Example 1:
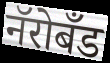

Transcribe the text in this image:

नॅरोबँड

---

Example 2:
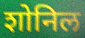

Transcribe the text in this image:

शोनिल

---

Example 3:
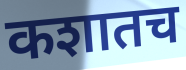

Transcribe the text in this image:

कशातच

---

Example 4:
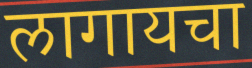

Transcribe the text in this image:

लागायचा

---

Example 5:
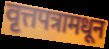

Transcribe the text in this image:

वृत्तपत्रामधून